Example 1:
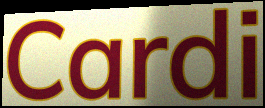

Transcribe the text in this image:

Cardi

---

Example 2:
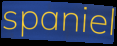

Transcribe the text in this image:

spaniel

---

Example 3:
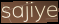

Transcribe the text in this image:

sajiye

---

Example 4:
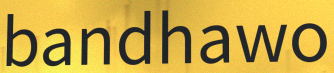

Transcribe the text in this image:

bandhawo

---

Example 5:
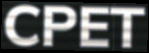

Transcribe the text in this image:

CPET